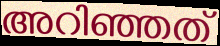
അറിഞ്ഞത്